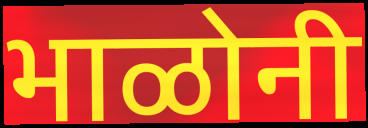
भाळोनी